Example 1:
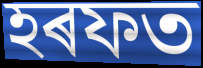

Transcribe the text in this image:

হৰফত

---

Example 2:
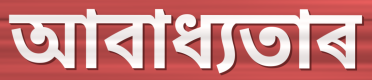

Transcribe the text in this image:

আবাধ্যতাৰ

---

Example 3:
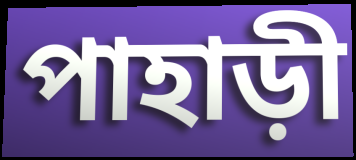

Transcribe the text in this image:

পাহাড়ী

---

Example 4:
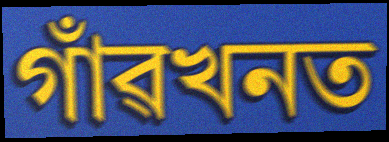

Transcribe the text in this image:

গাঁৱখনত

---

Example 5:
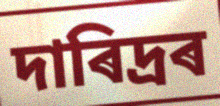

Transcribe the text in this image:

দাৰিদ্ৰৰ